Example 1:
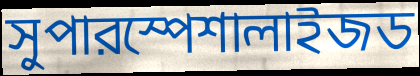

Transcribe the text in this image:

সুপারস্পেশালাইজড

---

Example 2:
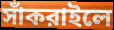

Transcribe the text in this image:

সাঁকরাইলে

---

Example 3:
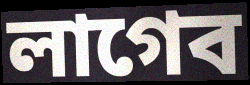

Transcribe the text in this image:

লাগেব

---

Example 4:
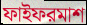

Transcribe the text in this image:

ফাইফরমাশ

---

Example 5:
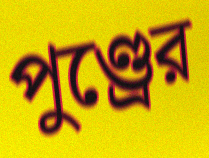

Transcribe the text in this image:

পুণ্ড্রের